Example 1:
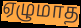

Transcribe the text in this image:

ஏழுமாத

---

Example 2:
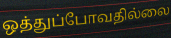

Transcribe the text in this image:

ஒத்துப்போவதில்லை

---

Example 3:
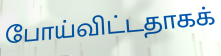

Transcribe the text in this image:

போய்விட்டதாகக்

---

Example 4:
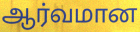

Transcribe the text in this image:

ஆர்வமான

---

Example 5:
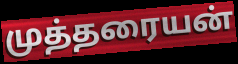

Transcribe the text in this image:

முத்தரையன்